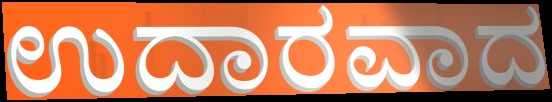
ಉದಾರವಾದ